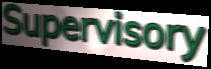
Supervisory